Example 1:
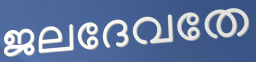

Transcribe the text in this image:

ജലദേവതേ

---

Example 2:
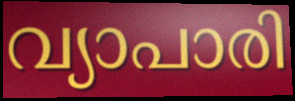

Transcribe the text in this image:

വ്യാപാരി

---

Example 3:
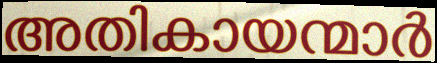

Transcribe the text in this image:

അതികായന്മാർ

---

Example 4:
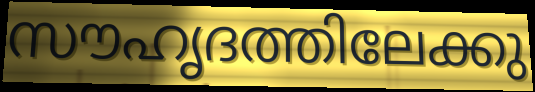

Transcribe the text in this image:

സൗഹൃദത്തിലേക്കു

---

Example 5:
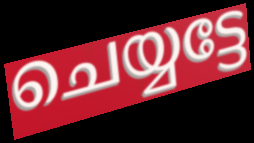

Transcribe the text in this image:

ചെയ്യട്ടേ